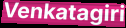
Venkatagiri